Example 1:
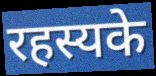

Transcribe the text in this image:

रहस्यके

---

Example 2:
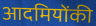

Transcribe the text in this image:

आदमियोंकी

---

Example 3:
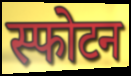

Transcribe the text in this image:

स्फोटन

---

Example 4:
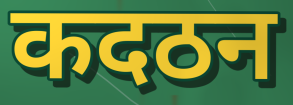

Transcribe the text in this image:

कदठन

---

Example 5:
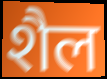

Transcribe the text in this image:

शैल